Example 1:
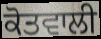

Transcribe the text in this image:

ਕੋਤਵਾਲੀ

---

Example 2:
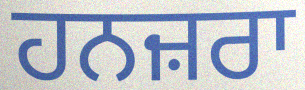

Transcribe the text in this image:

ਹਨਜ਼ਰਾ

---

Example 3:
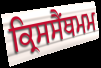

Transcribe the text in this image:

ਕ੍ਰਿਸਸੈਂਥਮਮ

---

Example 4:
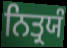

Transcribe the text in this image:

ਨਿਤ੍ਰਯੰ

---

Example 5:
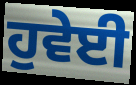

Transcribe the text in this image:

ਹੁਵੇਈ